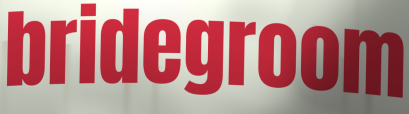
bridegroom